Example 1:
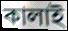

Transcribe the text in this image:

কালাই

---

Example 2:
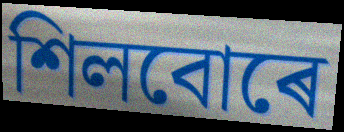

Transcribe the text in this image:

শিলবোৰে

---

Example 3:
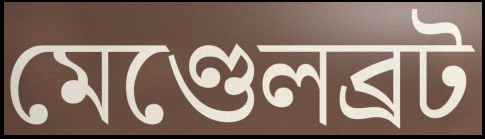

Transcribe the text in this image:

মেণ্ডেলব্ৰট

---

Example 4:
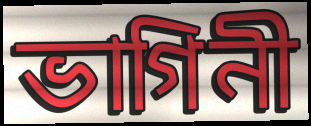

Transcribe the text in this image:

ভাগিনী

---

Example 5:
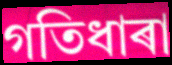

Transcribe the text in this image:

গতিধাৰা